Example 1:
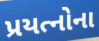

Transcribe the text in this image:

પ્રયત્નોના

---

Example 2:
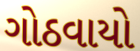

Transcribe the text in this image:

ગોઠવાયો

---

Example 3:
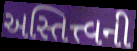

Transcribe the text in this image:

અસ્તિત્ત્વની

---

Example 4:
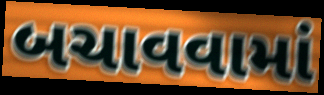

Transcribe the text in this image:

બચાવવામાં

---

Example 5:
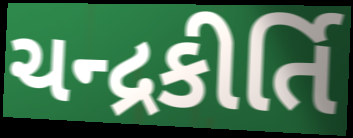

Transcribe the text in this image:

ચન્દ્રકીર્તિ